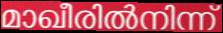
മാഖീരിൽനിന്ന്